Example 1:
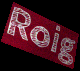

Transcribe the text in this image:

Roig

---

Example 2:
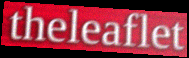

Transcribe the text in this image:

theleaflet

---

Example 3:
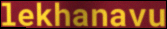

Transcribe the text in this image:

lekhanavu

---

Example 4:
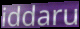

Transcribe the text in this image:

iddaru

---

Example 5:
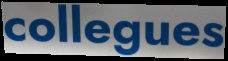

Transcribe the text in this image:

collegues